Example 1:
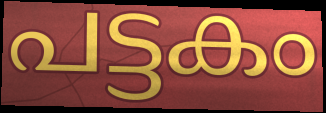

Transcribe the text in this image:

പട്ടകം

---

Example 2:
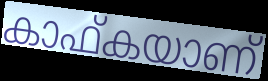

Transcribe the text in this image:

കാഫ്കയാണ്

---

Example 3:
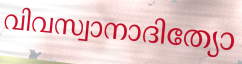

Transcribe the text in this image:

വിവസ്വാനാദിത്യോ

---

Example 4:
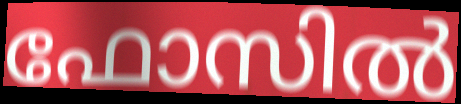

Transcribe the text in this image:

ഫോസിൽ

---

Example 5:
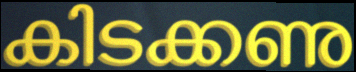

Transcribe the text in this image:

കിടക്കണു